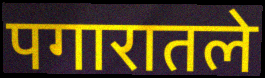
पगारातले